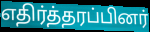
எதிர்த்தரப்பினர்